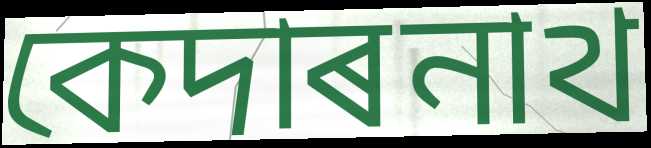
কেদাৰনাথ